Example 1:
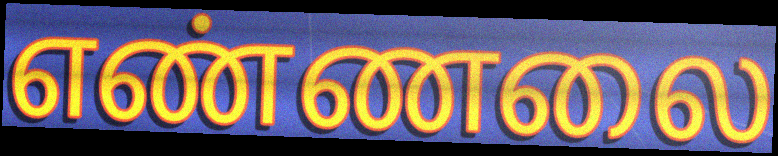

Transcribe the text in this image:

எண்ணலை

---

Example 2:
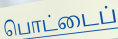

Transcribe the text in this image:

பொட்டைப்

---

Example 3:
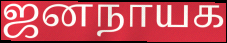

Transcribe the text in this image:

ஜனநாயக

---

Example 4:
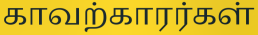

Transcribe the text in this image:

காவற்காரர்கள்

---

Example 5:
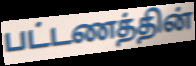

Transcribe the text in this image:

பட்டணத்தின்